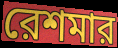
রেশমার